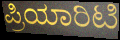
ಪ್ರಿಯಾರಿಟಿ